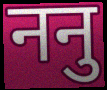
ननु